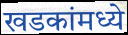
खडकांमध्ये